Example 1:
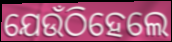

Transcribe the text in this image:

ଯେଉଁଠିହେଲେ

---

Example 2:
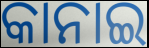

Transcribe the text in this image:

କାନାଇ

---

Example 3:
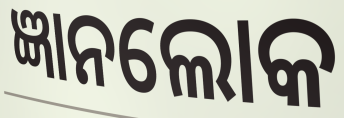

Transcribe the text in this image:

ଜ୍ଞାନଲୋକ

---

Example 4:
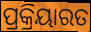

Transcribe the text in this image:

ପ୍ରକ୍ରିୟାରତ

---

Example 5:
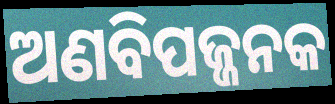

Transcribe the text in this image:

ଅଣବିପଜ୍ଜନକ